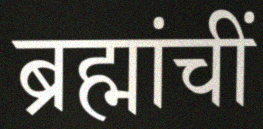
ब्रह्मांचीं